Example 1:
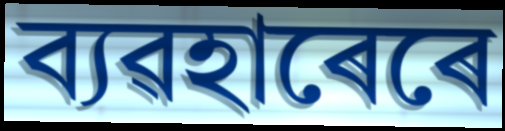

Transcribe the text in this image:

ব্যৱহাৰেৰে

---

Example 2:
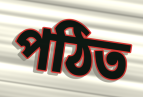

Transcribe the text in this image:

পঠিত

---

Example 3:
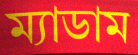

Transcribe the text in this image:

ম্যাডাম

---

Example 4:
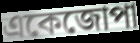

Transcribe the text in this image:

একেজোপা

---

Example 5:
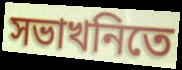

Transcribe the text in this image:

সভাখনিতে